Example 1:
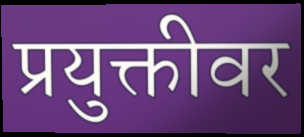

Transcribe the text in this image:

प्रयुक्तीवर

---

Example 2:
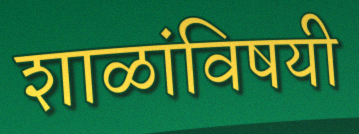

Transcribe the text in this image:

शाळांविषयी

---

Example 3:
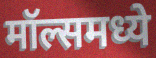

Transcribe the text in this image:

मॉल्समध्ये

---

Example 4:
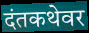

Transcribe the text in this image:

दंतकथेवर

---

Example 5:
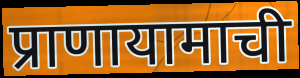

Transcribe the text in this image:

प्राणायामाची